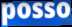
posso